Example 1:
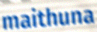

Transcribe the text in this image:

maithuna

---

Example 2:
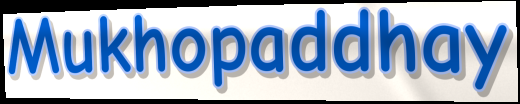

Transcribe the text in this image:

Mukhopaddhay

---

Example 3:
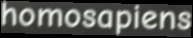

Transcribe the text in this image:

homosapiens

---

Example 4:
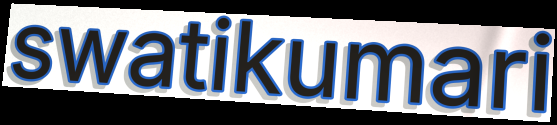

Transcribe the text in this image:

swatikumari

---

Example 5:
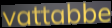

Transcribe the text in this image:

vattabbe